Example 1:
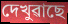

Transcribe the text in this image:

দেখুৱাছে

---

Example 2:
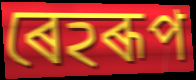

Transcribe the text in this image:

ৰেহৰূপ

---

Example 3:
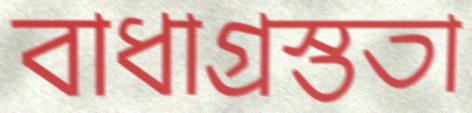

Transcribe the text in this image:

বাধাগ্ৰস্ততা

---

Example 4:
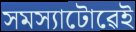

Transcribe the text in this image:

সমস্যাটোৱেই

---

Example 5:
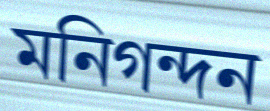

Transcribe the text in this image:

মনিগন্দন